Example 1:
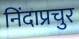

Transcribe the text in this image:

निंदाप्रचुर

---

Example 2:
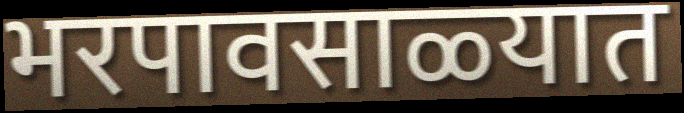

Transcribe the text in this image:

भरपावसाळ्यात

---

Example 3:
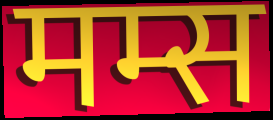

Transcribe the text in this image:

मम्स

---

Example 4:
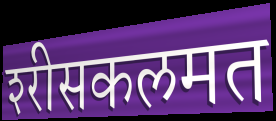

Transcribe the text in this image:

श्रीसकलमत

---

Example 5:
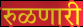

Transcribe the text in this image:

रुळणारी